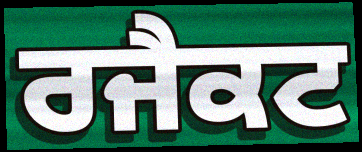
ਰਜੈਕਟ